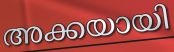
അക്കയായി